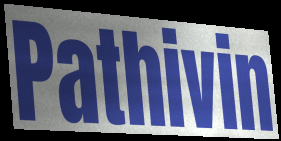
Pathivin